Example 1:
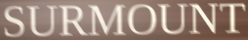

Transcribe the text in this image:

SURMOUNT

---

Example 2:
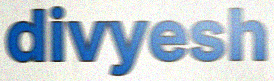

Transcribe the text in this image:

divyesh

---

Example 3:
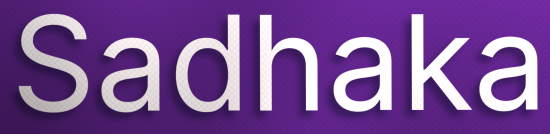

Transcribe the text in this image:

Sadhaka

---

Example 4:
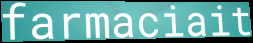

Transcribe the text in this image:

farmaciait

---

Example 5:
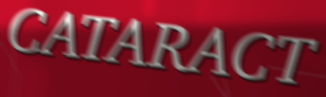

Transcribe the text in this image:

CATARACT